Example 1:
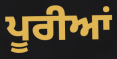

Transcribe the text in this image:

ਪੂਰੀਆਂ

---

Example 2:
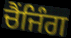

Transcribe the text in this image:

ਚੈਂਜਿੰਗ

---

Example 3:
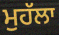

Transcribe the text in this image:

ਮੁਹੱਲਾ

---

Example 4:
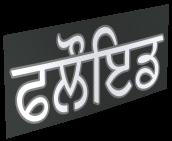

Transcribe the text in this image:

ਫਲੌਇਡ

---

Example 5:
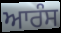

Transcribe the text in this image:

ਆਰੰਸ